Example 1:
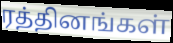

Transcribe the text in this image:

ரத்தினங்கள்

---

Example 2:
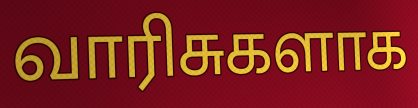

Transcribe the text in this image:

வாரிசுகளாக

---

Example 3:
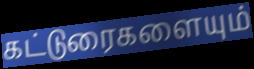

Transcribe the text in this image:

கட்டுரைகளையும்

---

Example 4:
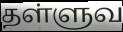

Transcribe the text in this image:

தள்ளுவ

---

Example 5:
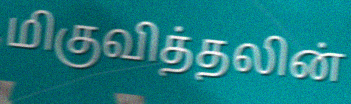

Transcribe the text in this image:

மிகுவித்தலின்